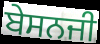
ਬੇਸਨਜੀ